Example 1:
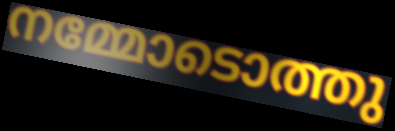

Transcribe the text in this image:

നമ്മോടൊത്തു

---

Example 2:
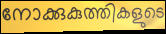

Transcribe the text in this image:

നോക്കുകുത്തികളുടെ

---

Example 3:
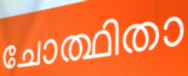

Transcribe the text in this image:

ചോത്ഥിതാ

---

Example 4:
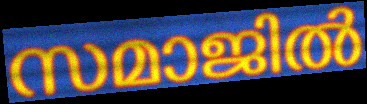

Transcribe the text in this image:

സമാജിൽ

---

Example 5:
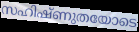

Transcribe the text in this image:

സഹിഷ്ണുതയോടെ